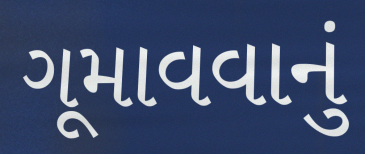
ગૂમાવવાનું